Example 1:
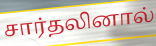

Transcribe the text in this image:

சார்தலினால்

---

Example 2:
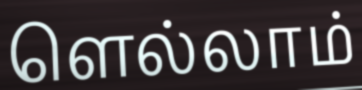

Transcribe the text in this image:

ளெல்லாம்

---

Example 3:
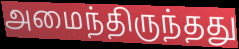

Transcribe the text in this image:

அமைந்திருந்தது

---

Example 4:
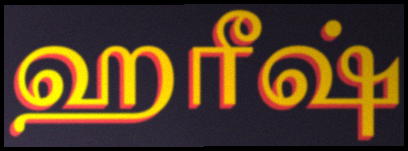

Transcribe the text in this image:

ஹரீஷ்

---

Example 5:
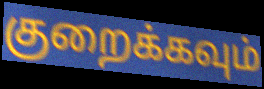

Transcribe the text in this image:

குறைக்கவும்